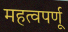
महत्‍वपर्णू